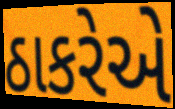
ઠાકરેએ